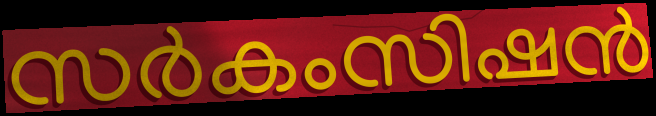
സർകംസിഷൻ